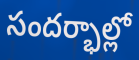
సందర్భాల్లో